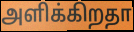
அளிக்கிறதா